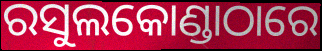
ରସୁଲକୋଣ୍ଡାଠାରେ